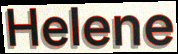
Helene